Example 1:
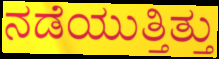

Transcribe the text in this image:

ನಡೆಯುತ್ತಿತ್ತು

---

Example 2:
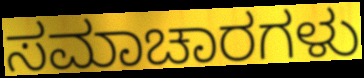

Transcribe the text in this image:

ಸಮಾಚಾರಗಳು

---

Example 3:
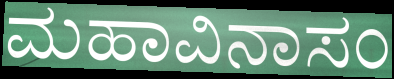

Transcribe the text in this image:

ಮಹಾವಿನಾಸಂ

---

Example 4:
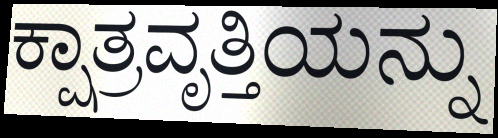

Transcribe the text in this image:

ಕ್ಷಾತ್ರವೃತ್ತಿಯನ್ನು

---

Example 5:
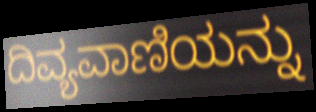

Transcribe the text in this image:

ದಿವ್ಯವಾಣಿಯನ್ನು